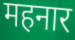
महनार